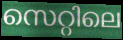
സെറ്റിലെ